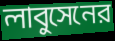
লাবুসেনের